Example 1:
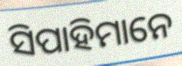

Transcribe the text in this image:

ସିପାହିମାନେ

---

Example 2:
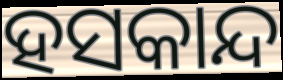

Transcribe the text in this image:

ହସକାନ୍ଦ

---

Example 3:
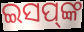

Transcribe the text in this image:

ଇସପ୍‌ଙ୍କ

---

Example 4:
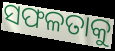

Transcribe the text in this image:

ସଫଳତାକୁ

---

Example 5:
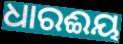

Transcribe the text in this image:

ଧାରଈୟ